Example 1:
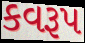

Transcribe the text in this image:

કવરૂપ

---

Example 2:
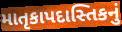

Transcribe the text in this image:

માતૃકાપદાસ્તિકનું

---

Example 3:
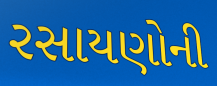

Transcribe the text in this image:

રસાયણોની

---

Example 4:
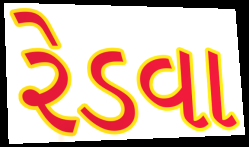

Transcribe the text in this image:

રેડવા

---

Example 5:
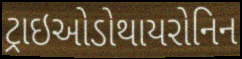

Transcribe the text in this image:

ટ્રાઇઓડોથાયરોનિન